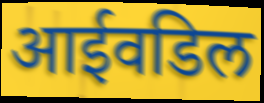
आईवडिल